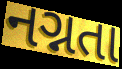
નગ્નતા